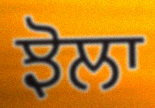
ਝੋਲਾ